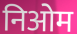
निओम